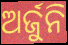
ଅର୍ଜୁନି